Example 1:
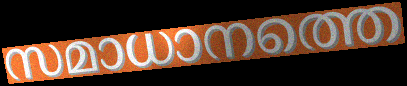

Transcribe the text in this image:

സമാധാനത്തെ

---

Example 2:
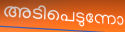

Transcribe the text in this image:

അടിപെടുന്നോ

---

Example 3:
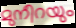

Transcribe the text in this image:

മുനീറയും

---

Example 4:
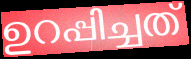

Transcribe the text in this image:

ഉറപ്പിച്ചത്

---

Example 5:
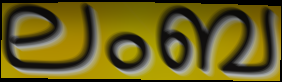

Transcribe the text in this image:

ലംബ